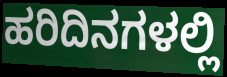
ಹರಿದಿನಗಳಲ್ಲಿ